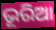
ଭୂରିଆ